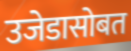
उजेडासोबत